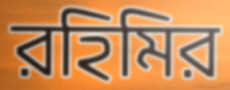
রহিমির